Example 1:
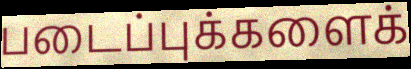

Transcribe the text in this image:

படைப்புக்களைக்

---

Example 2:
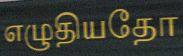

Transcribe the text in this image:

எழுதியதோ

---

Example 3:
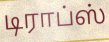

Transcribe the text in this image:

டிராப்ஸ்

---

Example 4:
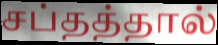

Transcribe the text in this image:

சப்தத்தால்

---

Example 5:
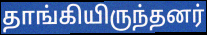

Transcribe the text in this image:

தாங்கியிருந்தனர்